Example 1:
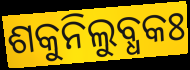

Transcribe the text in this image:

ଶକୁନିଲୁବ୍ଧକଃ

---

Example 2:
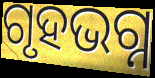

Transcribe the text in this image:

ଗୃହଭଗ୍ନ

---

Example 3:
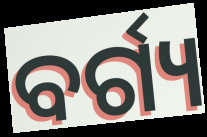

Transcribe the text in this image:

ବର୍ଗ୍ୟ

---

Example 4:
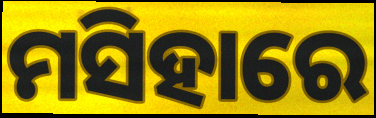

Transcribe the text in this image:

ମସିହାରେ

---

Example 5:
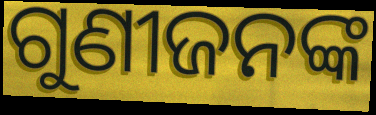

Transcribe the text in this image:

ଗୁଣୀଜନଙ୍କ